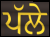
ਪੱਲੇ